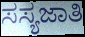
ಸಸ್ಯಜಾತಿ